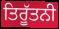
ਤਿਰੂੱਤਨੀ